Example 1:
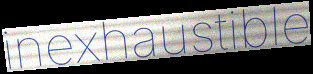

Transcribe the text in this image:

inexhaustible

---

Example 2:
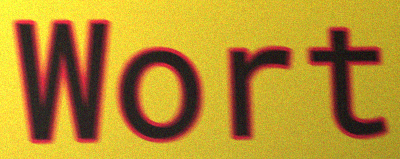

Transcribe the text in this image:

Wort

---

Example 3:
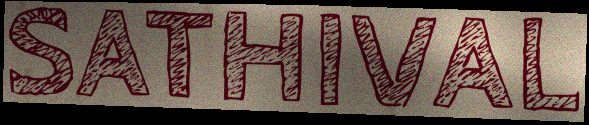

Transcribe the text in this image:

SATHIVAL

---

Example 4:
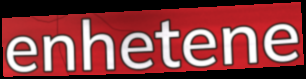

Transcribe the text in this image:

enhetene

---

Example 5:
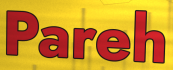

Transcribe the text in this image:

Pareh